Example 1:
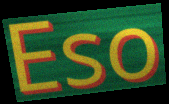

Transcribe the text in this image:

Eso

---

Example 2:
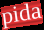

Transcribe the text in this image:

pida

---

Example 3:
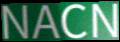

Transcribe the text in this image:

NACN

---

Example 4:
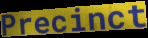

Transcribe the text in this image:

Precinct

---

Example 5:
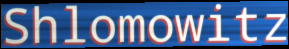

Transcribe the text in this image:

Shlomowitz